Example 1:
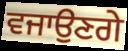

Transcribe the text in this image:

ਵਜਾਉਣਗੇ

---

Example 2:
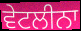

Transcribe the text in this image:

ਵੇਟਲੀਨਾ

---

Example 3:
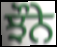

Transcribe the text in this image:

ਝੌਨੇ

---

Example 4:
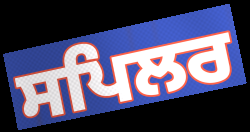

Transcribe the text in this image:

ਸਪਿਲਰ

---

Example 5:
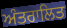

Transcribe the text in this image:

ਅੰਤਰਾਲਿਤ